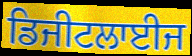
ਡਿਜੀਟਲਾਈਜ